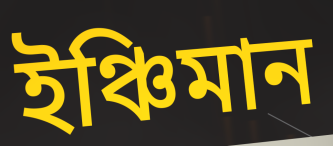
ইঞ্চিমান